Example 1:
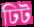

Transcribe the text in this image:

ঢিট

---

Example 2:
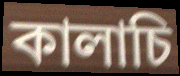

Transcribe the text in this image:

কালাচি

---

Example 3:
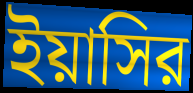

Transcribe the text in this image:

ইয়াসির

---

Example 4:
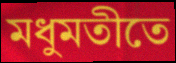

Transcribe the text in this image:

মধুমতীতে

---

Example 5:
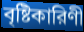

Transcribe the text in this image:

বৃষ্টিকারিণী